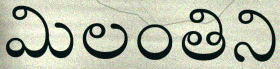
మిలంతిని